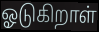
ஓடுகிறாள்